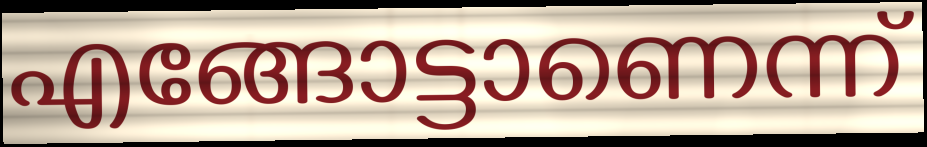
എങ്ങോട്ടാണെന്ന്